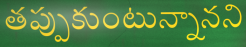
తప్పుకుంటున్నానని